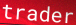
trader